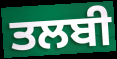
ਤਲਬੀ